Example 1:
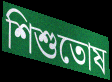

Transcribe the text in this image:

শিশুতোষ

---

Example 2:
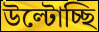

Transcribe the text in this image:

উল্টোচ্ছি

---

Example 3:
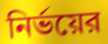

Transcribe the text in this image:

নির্ভয়ের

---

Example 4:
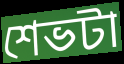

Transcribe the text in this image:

শেভটা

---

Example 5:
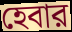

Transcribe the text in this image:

হেবার